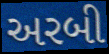
અરબી